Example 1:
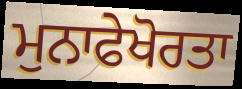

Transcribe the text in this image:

ਮੁਨਾਫੇਖੋਰਤਾ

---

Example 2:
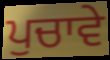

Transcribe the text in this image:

ਪੁਚਾਵੇ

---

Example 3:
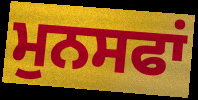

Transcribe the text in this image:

ਮੁਨਸਫਾਂ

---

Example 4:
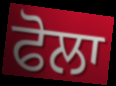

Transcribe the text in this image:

ਫੋਲਾ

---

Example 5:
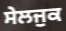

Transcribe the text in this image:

ਸੇਲਜੁਕ